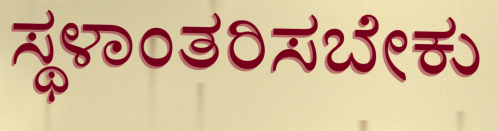
ಸ್ಥಳಾಂತರಿಸಬೇಕು